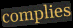
complies